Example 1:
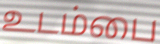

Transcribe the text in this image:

உடம்பை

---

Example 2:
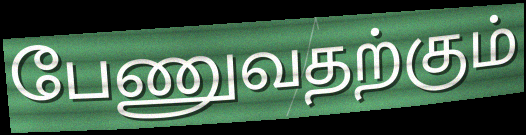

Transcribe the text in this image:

பேணுவதற்கும்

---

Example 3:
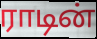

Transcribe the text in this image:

ராடின்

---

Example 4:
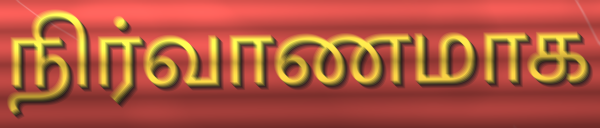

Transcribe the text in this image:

நிர்வாணமாக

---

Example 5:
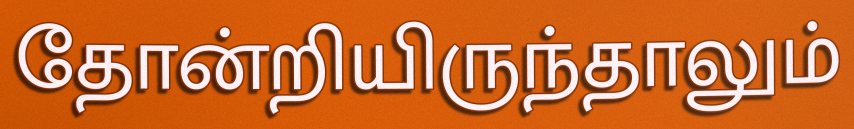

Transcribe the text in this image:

தோன்றியிருந்தாலும்